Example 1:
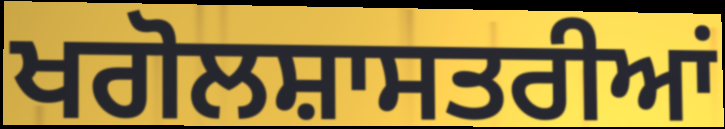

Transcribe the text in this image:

ਖਗੋਲਸ਼ਾਸਤਰੀਆਂ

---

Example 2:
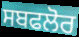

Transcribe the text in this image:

ਸਬਫਲੋਰ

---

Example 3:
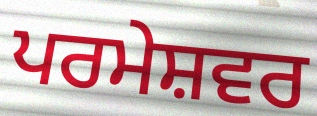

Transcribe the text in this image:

ਪਰਮੇਸ਼ਵਰ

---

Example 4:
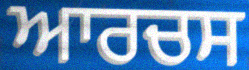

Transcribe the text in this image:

ਆਰਚਸ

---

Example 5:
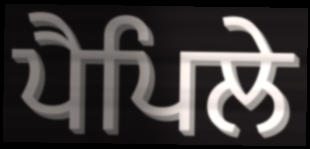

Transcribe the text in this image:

ਪੈਪਿਲੇ